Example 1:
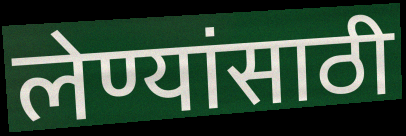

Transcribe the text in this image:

लेण्यांसाठी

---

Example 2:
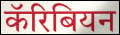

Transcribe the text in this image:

कॅरिबियन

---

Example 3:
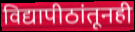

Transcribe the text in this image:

विद्यापीठांतूनही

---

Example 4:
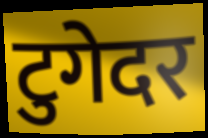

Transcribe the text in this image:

टुगेदर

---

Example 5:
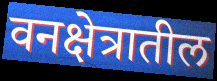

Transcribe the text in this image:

वनक्षेत्रातील